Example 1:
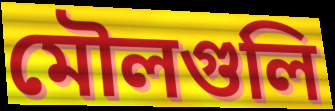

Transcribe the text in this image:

মৌলগুলি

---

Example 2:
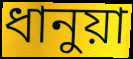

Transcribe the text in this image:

ধানুয়া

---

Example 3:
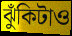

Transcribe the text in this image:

ঝুঁকিটাও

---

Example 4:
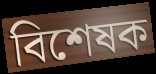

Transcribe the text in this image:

বিশেষক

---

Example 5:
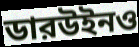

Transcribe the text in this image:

ডারউইনও